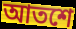
আতশে